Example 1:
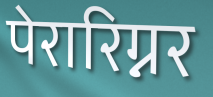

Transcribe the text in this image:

पेरारिग्नर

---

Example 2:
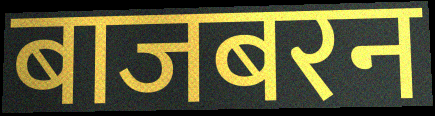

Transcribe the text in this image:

बाजबरन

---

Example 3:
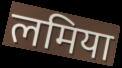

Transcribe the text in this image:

लमिया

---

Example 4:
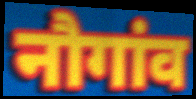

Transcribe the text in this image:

नौगांव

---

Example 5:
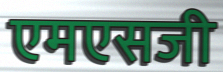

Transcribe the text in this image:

एमएसजी